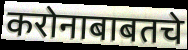
करोनाबाबतचे